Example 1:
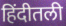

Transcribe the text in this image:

हिंदीतली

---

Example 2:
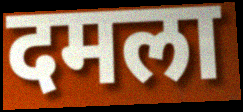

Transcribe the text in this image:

दमला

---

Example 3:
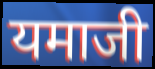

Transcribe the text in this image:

यमाजी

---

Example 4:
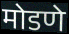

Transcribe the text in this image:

मोडणे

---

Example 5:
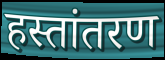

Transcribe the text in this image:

हस्तांतरण